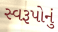
સ્વરૂપોનું